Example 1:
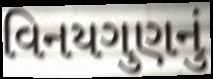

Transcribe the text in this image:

વિનયગુણનું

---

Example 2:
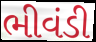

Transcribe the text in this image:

ભીવંડી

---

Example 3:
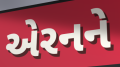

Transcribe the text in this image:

એરનને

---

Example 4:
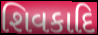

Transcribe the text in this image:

શિવકાદિ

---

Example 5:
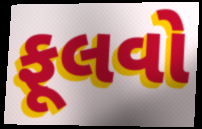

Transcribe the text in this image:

ફૂલવો